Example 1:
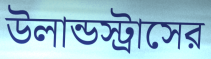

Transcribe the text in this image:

উলান্ডস্ট্রাসের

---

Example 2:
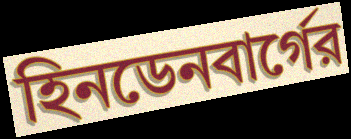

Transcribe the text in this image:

হিনডেনবার্গের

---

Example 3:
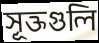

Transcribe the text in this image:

সূক্তগুলি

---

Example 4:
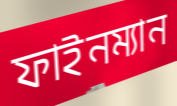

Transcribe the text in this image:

ফাইনম্যান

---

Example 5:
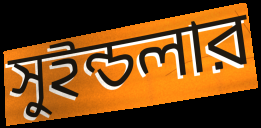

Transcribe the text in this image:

সুইন্ডলার